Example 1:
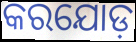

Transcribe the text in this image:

କରଯୋଡ଼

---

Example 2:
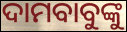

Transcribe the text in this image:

ଦାମବାବୁଙ୍କୁ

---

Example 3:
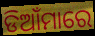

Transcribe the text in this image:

ଡିଆଁମାରେ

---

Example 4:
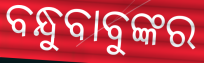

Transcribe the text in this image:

ବନ୍ଧୁବାବୁଙ୍କର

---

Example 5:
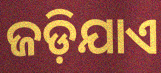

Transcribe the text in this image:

ଜଡ଼ିଯାଏ